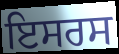
ਇਸਰਸ